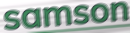
samson